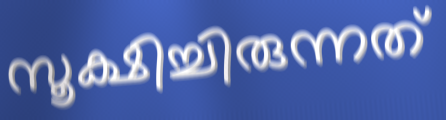
സൂക്ഷിച്ചിരുന്നത്